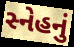
સ્નેહનું